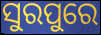
ସୁରପୁରେ